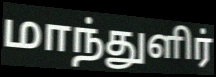
மாந்துளிர்